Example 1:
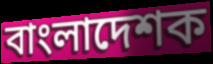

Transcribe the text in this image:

বাংলাদেশক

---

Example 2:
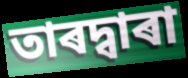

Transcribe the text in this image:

তাৰদ্বাৰা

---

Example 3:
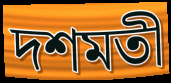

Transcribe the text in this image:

দশমতী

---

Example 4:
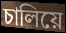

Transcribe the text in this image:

চালিয়ে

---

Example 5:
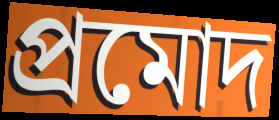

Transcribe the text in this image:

প্ৰমোদ